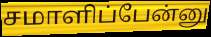
சமாளிப்பேன்னு